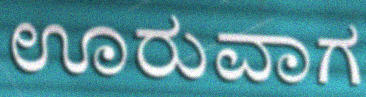
ಊರುವಾಗ